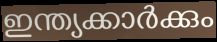
ഇന്ത്യക്കാർക്കും